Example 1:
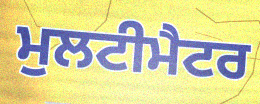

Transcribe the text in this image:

ਮੁਲਟੀਮੈਟਰ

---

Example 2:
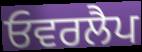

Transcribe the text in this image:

ਓਵਰਲੈਪ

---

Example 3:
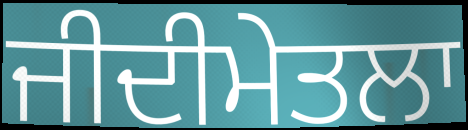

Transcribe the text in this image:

ਜੀਦੀਮੇਤਲਾ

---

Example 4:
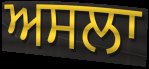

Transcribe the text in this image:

ਅਸਲਾ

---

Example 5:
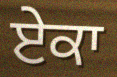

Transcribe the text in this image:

ਏਕਾ